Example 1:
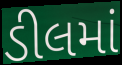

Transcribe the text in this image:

ડીલમાં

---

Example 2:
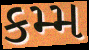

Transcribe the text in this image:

કમ્મ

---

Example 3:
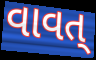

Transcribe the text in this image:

વાવત્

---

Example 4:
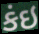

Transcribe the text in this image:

કંઇ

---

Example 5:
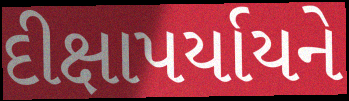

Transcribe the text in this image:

દીક્ષાપર્યાયને